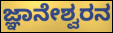
ಜ್ಞಾನೇಶ್ವರನ